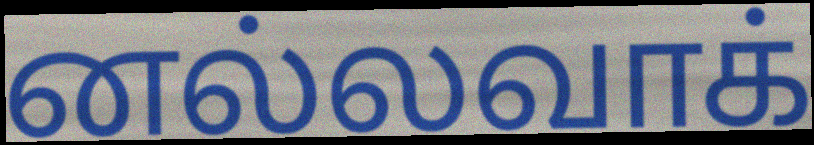
னல்லவாக்